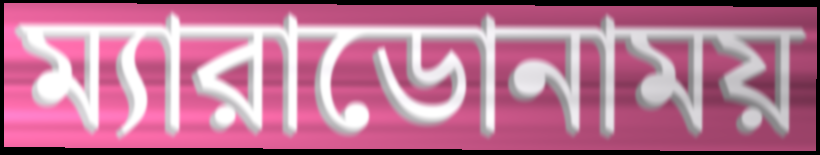
ম্যারাডোনাময়